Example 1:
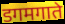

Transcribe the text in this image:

डगमगाते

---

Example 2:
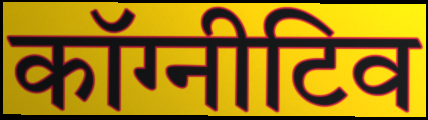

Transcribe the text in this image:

कॉग्‍नीटिव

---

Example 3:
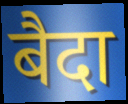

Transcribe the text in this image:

बैदा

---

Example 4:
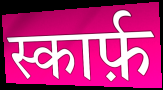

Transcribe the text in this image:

स्कार्फ़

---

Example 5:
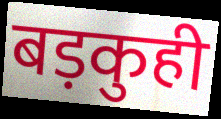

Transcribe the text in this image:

बड़कुही